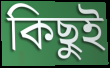
কিছুই